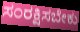
ಸಂರಕ್ಷಿಸಬೇಕು